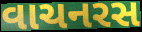
વાચનરસ